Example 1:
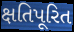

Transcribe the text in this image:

ક્ષતિપૂરિત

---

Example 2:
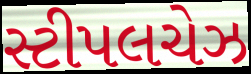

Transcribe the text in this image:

સ્ટીપલચેઝ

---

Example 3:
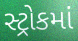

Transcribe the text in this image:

સ્ટ્રોકમાં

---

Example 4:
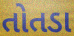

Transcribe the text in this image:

તોતડા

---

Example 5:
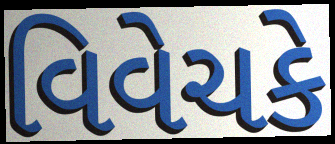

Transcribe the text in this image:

વિવેચકે